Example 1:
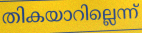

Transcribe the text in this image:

തികയാറില്ലെന്ന്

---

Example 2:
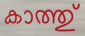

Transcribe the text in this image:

കാത്തു്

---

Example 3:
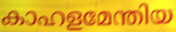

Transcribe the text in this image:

കാഹളമേന്തിയ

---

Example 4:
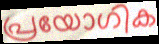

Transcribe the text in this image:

പ്രയോഗിക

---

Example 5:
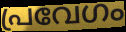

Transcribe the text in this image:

പ്രവേഗം